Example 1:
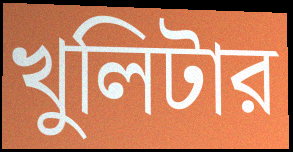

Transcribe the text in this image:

খুলিটার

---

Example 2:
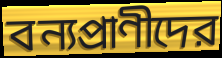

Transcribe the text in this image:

বন্যপ্রাণীদের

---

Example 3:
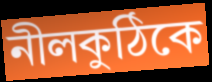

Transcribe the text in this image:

নীলকুঠিকে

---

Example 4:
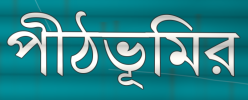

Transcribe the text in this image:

পীঠভূমির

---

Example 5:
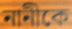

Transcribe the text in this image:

নানীকে